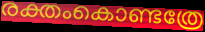
രക്തംകൊണ്ടത്രേ